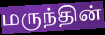
மருந்தின்